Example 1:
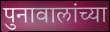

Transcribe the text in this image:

पुनावालांच्या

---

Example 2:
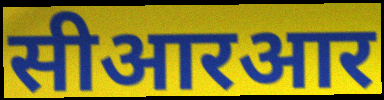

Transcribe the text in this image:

सीआरआर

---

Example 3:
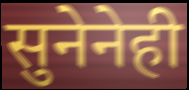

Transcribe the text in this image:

सुनेनेही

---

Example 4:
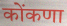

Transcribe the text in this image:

कोंकणा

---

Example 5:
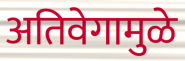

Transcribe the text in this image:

अतिवेगामुळे